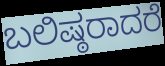
ಬಲಿಷ್ಠರಾದರೆ